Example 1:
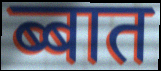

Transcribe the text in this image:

ब्बात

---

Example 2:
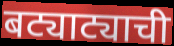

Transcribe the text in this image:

बट्याट्याची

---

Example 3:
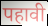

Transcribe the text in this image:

पहावी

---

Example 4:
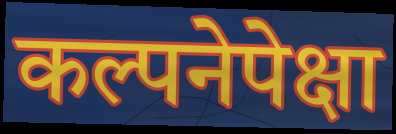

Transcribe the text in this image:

कल्पनेपेक्षा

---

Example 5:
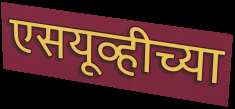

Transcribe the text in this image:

एसयूव्हीच्या